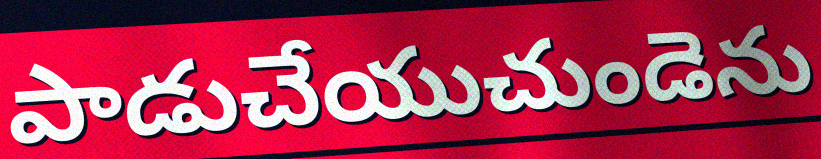
పాడుచేయుచుండెను